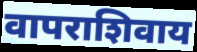
वापराशिवाय